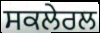
ਸਕਲੇਰਲ